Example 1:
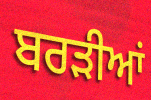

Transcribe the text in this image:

ਬਰੜੀਆਂ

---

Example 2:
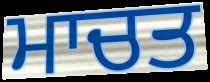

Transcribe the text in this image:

ਮਾਚਤ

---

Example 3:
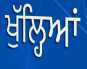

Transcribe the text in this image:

ਖੁੱਲ੍ਹਿਆਂ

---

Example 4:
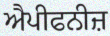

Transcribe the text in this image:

ਐਪੀਫਨੀਜ਼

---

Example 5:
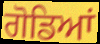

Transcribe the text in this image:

ਗੋਡਿਆਂ